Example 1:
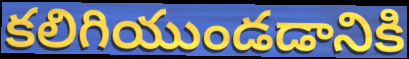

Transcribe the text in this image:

కలిగియుండడానికి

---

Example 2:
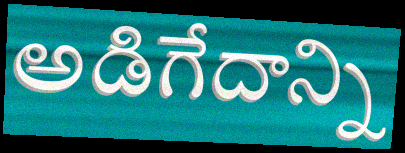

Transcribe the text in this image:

అడిగేదాన్ని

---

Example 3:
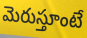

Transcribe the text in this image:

మెరుస్తూంటే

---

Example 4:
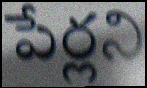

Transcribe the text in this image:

పేర్లని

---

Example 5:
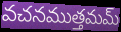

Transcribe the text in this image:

వచనముత్తమమ్